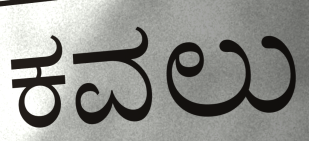
ಕವಲು